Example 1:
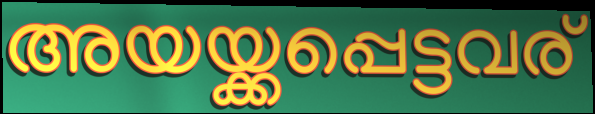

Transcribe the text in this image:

അയയ്ക്കപ്പെട്ടവര്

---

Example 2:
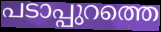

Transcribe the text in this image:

പടാപ്പുറത്തെ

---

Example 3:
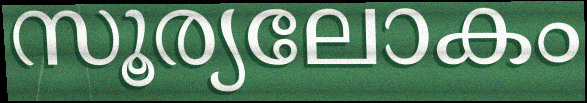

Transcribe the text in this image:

സൂര്യലോകം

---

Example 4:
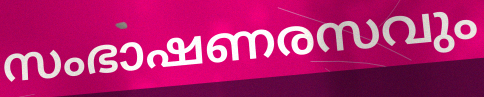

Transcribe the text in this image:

സംഭാഷണരസവും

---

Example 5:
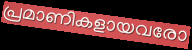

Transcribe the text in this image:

പ്രമാണികളായവരോ